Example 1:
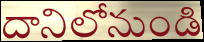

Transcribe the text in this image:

దానిలోనుండి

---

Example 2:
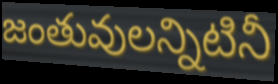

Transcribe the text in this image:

జంతువులన్నిటినీ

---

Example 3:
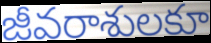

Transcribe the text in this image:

జీవరాశులకూ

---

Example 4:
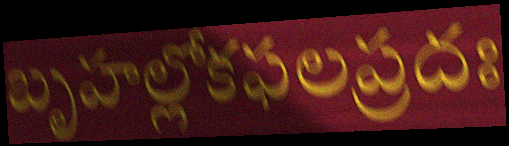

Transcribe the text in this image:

బృహల్లోకఫలప్రదః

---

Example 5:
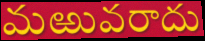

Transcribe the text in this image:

మఱువరాదు